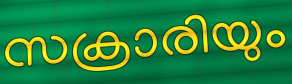
സക്രാരിയും